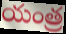
యంత్ర